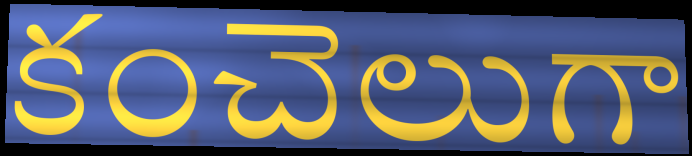
కంచెలుగా